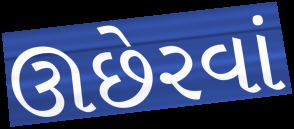
ઊછેરવાં